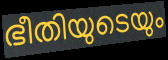
ഭീതിയുടെയും